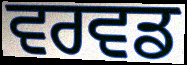
ਵਰਵਡ